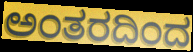
ಅಂತರದಿಂದ